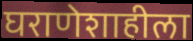
घराणेशाहीला